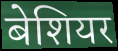
बेशियर